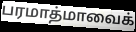
பரமாத்மாவைக்